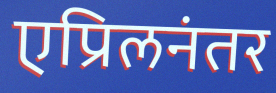
एप्रिलनंतर